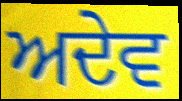
ਅਦੇਵ